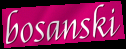
bosanski